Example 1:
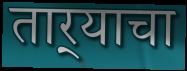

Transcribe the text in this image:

तार्याचा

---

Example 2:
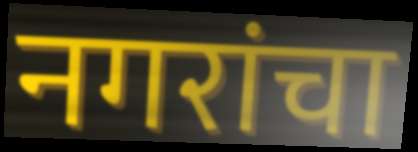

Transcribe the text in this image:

नगरांचा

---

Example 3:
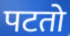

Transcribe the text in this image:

पटतो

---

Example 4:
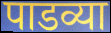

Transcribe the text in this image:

पाडव्या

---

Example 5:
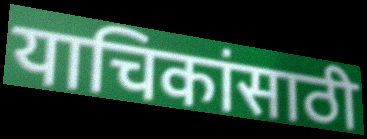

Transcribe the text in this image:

याचिकांसाठी